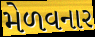
મેળવનાર